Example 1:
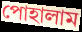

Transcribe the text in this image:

পোহালাম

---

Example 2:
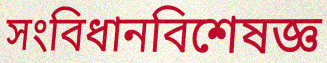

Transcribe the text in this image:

সংবিধানবিশেষজ্ঞ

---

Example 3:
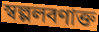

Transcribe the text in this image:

স্বল্পলবণাক্ত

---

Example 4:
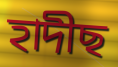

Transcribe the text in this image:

হাদীছ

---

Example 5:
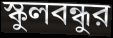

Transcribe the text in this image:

স্কুলবন্ধুর